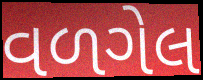
વળગેલ